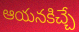
ఆయనకిచ్చే